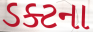
ડક્ટના